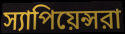
স্যাপিয়েন্সরা